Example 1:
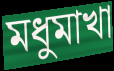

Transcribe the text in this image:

মধুমাখা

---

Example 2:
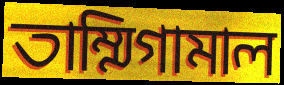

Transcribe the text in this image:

তাম্মিগামাল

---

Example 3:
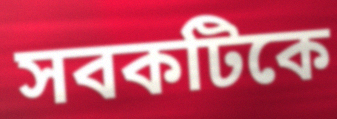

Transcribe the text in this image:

সবকটিকে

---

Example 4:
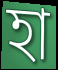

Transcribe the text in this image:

হা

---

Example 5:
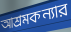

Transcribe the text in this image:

আশ্রমকন্যার